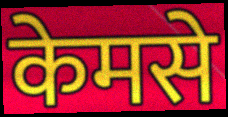
केमसे